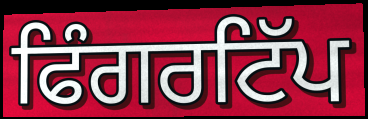
ਫਿੰਗਰਟਿੱਪ